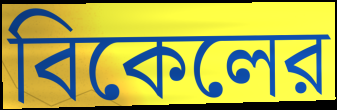
বিকেলের